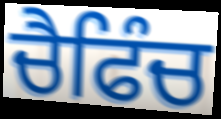
ਚੈਫਿੰਚ